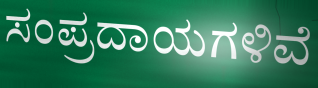
ಸಂಪ್ರದಾಯಗಳಿವೆ